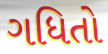
ગધિતો